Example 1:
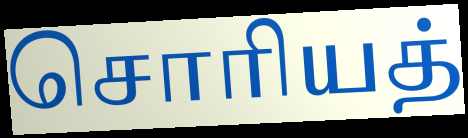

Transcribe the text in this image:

சொரியத்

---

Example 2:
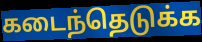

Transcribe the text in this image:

கடைந்தெடுக்க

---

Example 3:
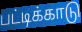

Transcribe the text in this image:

பட்டிக்காடு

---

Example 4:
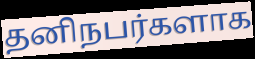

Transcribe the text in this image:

தனிநபர்களாக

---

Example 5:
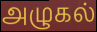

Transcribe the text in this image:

அழுகல்